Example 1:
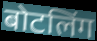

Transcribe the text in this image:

बोटलिंग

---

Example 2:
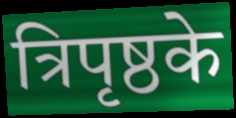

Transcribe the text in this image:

त्रिपृष्ठके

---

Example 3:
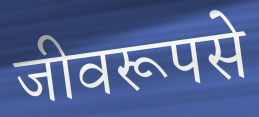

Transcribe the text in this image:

जीवरूपसे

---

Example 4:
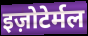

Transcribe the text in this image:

इज़ोटेर्मल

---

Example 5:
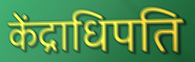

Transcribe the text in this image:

केंद्राधिपति